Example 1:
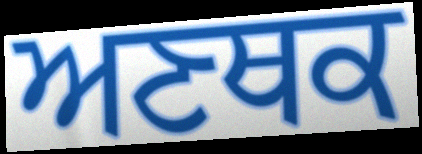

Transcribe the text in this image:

ਅਣਥਕ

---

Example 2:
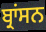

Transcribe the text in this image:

ਬ੍ਰਾਂਸਨ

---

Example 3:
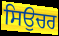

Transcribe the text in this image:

ਸਿਉਚਰ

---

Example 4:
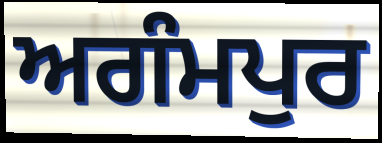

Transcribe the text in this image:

ਅਗੰਮਪੁਰ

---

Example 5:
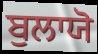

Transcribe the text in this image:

ਬੁਲਾਯੋ